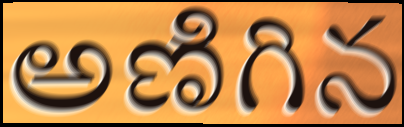
అణిగిన